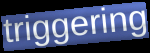
triggering